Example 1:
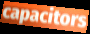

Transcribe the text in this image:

capacitors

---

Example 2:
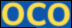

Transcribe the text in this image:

OCO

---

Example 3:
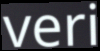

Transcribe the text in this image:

veri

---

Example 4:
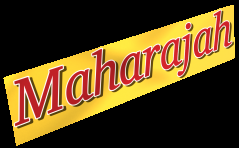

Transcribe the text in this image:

Maharajah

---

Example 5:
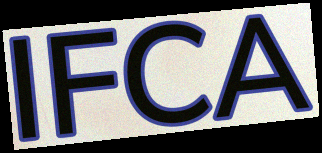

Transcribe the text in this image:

IFCA